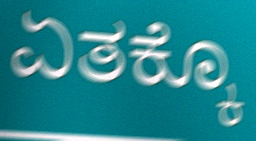
ಏತಕ್ಕೊ